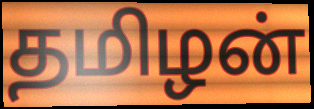
தமிழன்